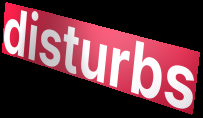
disturbs